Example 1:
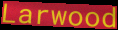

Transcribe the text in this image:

Larwood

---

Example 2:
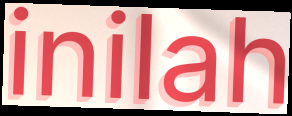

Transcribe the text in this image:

inilah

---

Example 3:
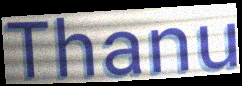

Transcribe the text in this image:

Thanu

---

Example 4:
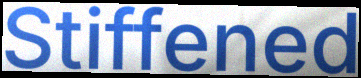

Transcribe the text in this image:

Stiffened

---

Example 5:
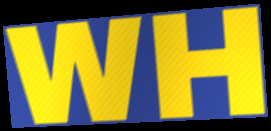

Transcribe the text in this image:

WH